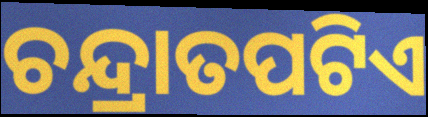
ଚନ୍ଦ୍ରାତପଟିଏ